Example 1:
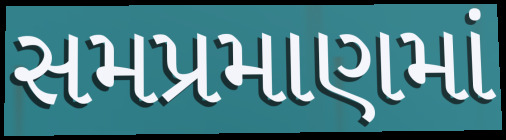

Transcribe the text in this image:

સમપ્રમાણમાં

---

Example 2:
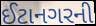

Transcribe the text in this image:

ઈટાનગરની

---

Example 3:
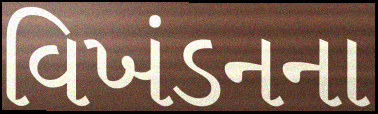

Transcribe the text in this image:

વિખંડનના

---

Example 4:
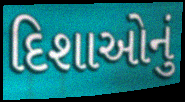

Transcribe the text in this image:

દિશાઓનું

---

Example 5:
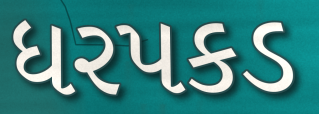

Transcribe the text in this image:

ધરપકડ